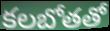
కలబోతతో